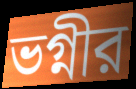
ভগ্নীর